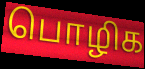
பொழிக